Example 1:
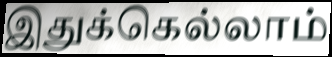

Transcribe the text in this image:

இதுக்கெல்லாம்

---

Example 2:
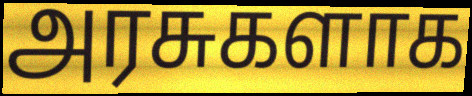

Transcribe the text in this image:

அரசுகளாக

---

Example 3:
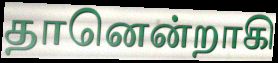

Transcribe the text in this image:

தானென்றாகி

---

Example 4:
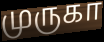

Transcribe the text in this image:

முருகா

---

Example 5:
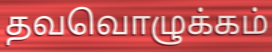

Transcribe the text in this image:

தவவொழுக்கம்